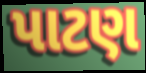
પાટણ